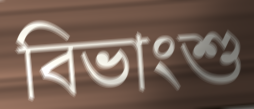
বিভাংশু